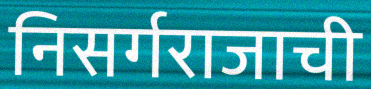
निसर्गराजाची